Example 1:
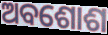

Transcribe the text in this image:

ଅବଶୋଶ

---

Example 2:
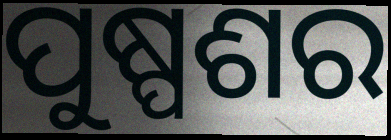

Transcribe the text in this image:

ପୁଷ୍ପଶର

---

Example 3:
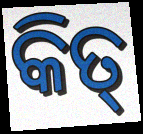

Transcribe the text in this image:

କିତ୍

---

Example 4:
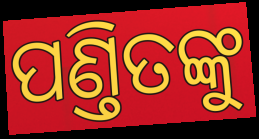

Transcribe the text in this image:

ପଣ୍ତିତଙ୍କୁ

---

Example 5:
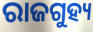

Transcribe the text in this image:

ରାଜଗୁହ୍ୟ